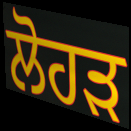
ਲੋਹੜ